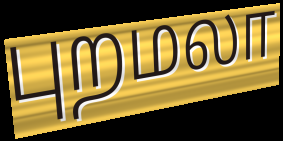
புறமலா